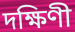
দক্ষিণী